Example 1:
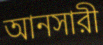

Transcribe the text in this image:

আনসারী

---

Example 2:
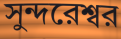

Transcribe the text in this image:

সুন্দরেশ্বর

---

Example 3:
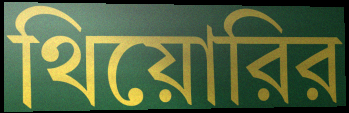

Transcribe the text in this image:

থিয়োরির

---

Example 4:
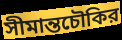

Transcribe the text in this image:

সীমান্তচৌকির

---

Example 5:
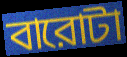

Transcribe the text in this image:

বারোটা